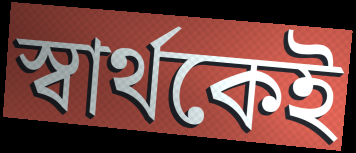
স্বার্থকেই